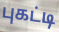
புகட்டி